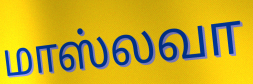
மாஸ்லவா